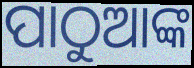
ପାଠୁଆଙ୍କ